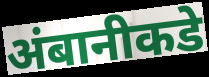
अंबानीकडे